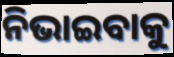
ନିଭାଇବାକୁ